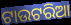
ଟାଉଟରିଆ